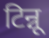
टिन्नू